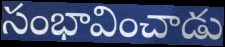
సంభావించాడు